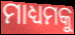
ମାଧ୍ୟମକୁ